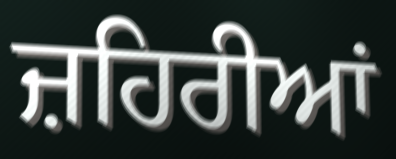
ਜ਼ਹਿਰੀਆਂ